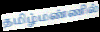
தமிழ்மண்ணில்